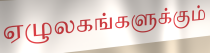
ஏழுலகங்களுக்கும்